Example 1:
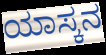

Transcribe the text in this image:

ಯಾಸ್ಕನ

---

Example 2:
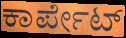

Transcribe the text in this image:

ಕಾರ್ಪೇಟ್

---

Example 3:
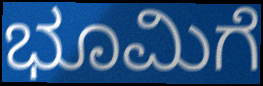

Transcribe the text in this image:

ಭೂಮಿಗೆ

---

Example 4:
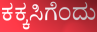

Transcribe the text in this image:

ಕಕ್ಕಸಿಗೆಂದು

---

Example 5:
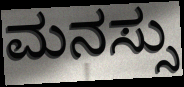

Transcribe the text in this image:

ಮನಸ್ಸು